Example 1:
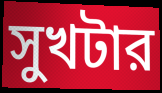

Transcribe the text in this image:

সুখটার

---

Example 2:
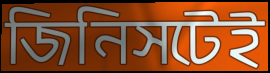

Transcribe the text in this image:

জিনিসটেই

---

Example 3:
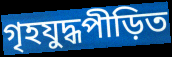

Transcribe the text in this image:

গৃহযুদ্ধপীড়িত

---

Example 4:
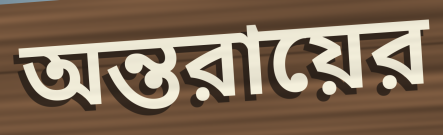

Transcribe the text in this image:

অন্তরায়ের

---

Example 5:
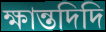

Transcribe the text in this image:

ক্ষান্তদিদি